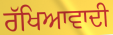
ਰੱਖਿਆਵਾਦੀ